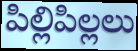
పిల్లిపిల్లలు